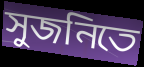
সুজনিতে